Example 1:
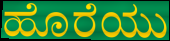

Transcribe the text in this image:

ಹೊರೆಯು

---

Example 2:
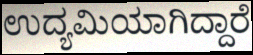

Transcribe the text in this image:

ಉದ್ಯಮಿಯಾಗಿದ್ದಾರೆ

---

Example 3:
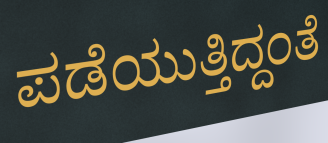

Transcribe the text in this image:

ಪಡೆಯುತ್ತಿದ್ದಂತೆ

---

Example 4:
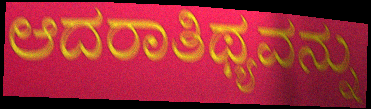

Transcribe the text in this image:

ಆದರಾತಿಥ್ಯವನ್ನು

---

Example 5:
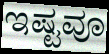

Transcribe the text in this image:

ಇಷ್ಟವೂ